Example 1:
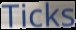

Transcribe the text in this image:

Ticks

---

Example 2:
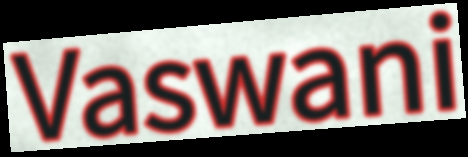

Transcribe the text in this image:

Vaswani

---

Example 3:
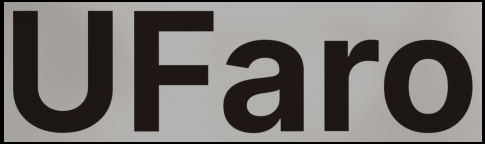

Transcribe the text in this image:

UFaro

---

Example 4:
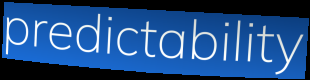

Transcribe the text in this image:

predictability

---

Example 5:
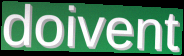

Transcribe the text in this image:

doivent